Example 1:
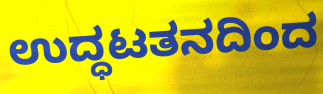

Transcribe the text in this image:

ಉದ್ಧಟತನದಿಂದ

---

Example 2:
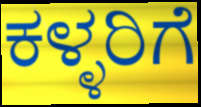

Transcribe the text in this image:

ಕಳ್ಳರಿಗೆ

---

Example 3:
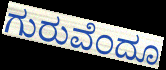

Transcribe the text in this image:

ಗುರುವೆಂದೂ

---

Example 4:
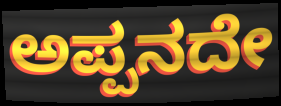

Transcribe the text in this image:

ಅಪ್ಪನದೇ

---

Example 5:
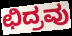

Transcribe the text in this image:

ಛಿದ್ರವು